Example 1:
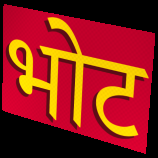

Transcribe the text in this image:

भोट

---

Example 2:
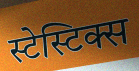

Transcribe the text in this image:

स्टेस्टिक्स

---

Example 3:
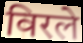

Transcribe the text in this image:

विरले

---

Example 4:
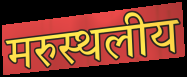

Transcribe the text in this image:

मरुस्थलीय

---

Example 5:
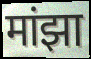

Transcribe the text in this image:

मांझा